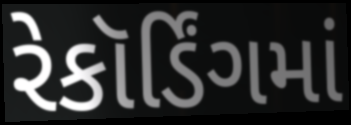
રેકૉર્ડિંગમાં